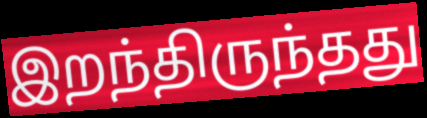
இறந்திருந்தது